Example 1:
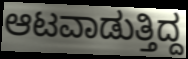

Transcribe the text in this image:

ಆಟವಾಡುತ್ತಿದ್ದ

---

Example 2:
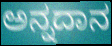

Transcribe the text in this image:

ಅನ್ನದಾನ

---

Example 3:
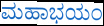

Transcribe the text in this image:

ಮಹಾಭಯಂ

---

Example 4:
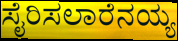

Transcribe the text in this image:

ಸೈರಿಸಲಾರೆನಯ್ಯ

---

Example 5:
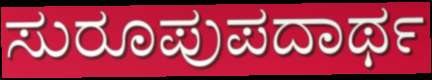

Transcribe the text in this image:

ಸುರೂಪುಪದಾರ್ಥ